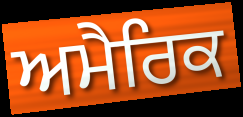
ਅਮੈਰਿਕ